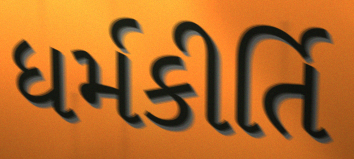
ધર્મકીર્તિ